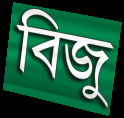
বিজু